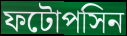
ফটোপসিন